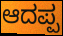
ಆದಪ್ಪ